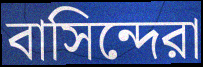
বাসিন্দেরা